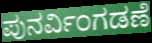
ಪುನರ್ವಿಂಗಡಣೆ